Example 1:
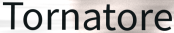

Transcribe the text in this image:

Tornatore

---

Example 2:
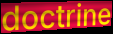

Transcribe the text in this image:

doctrine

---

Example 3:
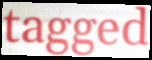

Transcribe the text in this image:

tagged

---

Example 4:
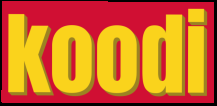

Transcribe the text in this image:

koodi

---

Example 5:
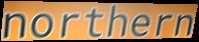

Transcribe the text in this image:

northern